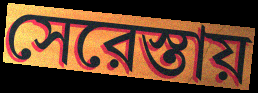
সেরেস্তায়